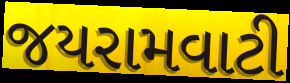
જયરામવાટી